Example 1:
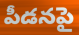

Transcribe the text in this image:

పీడనపై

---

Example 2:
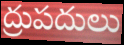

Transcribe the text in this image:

ద్రుపదులు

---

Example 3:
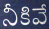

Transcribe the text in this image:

నీకివే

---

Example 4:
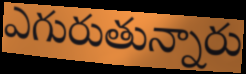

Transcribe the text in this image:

ఎగురుతున్నారు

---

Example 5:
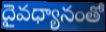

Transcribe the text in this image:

దైవధ్యానంతో